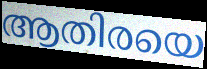
ആതിരയെ